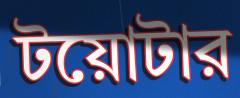
টয়োটার